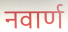
नवार्ण